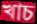
খাচ